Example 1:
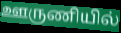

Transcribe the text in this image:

ஊருணியில்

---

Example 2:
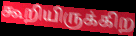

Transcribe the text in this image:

கூறியிருக்கிற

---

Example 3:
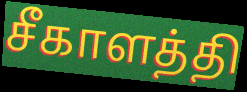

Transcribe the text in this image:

சீகாளத்தி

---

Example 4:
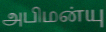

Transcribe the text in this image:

அபிமன்யு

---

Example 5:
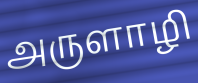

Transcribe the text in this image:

அருளாழி